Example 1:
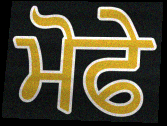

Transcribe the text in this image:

ਮੋਫੇ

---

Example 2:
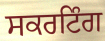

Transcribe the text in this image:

ਸਕਰਟਿੰਗ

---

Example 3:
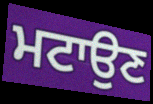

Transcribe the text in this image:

ਮਟਾਉਣ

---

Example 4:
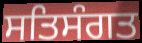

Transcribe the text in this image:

ਸਤਿਸੰਗਤ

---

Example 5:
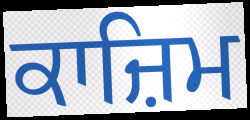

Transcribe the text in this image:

ਕਾਜ਼ਿਮ